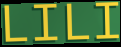
LILI